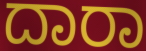
ದಾರಾ